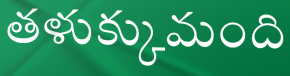
తళుక్కుమంది